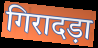
गिरादड़ा